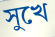
সুখে